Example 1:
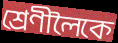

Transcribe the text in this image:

শ্ৰেণীলৈকে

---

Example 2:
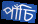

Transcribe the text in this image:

পাঁচি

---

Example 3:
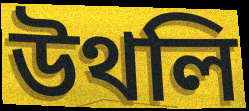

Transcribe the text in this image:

উথলি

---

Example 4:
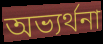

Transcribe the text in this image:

অভ্যৰ্থনা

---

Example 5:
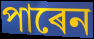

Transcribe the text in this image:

পাৰেন